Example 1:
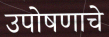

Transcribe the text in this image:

उपोषणाचे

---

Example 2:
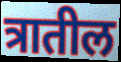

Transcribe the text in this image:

त्रातील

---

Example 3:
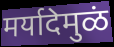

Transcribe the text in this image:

मर्यादेमुळं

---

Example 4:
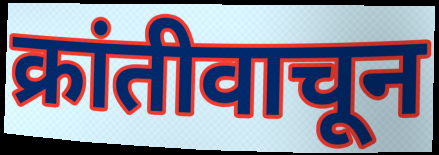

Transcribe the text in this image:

क्रांतीवाचून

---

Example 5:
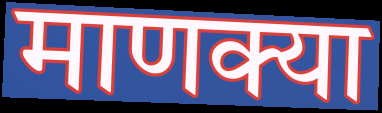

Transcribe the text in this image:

माणक्या